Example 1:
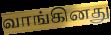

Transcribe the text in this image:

வாங்கினது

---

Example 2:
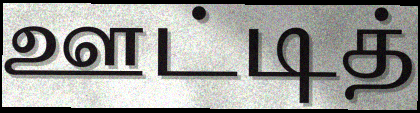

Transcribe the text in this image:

ஊட்டித்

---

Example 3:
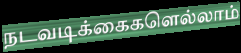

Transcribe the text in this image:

நடவடிக்கைகளெல்லாம்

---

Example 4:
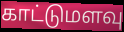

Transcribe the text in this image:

காட்டுமளவு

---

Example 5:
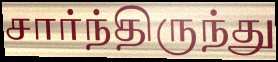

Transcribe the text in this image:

சார்ந்திருந்து